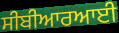
ਸੀਬੀਆਰਆਈ